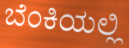
ಬೆಂಕಿಯಲ್ಲಿ